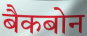
बैकबोन